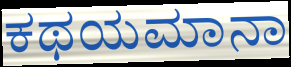
ಕಥಯಮಾನಾ